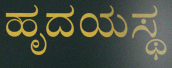
ಹೃದಯಸ್ಥ